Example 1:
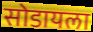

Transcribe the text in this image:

सोडायला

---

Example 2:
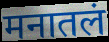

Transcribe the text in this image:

मनातलं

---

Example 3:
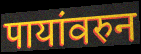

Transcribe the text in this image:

पायांवरुन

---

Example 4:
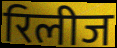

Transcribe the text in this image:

रिलीज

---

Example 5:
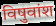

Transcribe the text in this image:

विषुवांश